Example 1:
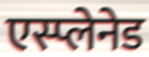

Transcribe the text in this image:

एस्प्लेनेड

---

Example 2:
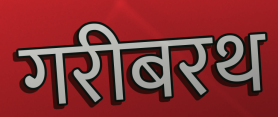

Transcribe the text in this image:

गरीबरथ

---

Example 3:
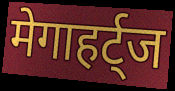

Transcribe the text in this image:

मेगाहर्ट्ज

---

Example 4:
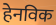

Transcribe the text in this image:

हेनविक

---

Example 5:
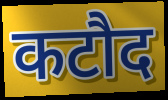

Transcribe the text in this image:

कटौद